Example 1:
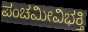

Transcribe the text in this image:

ಪಂಚಮೀವಿಭಕ್ತಿ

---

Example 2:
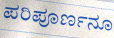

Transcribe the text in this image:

ಪರಿಪೂರ್ಣನೂ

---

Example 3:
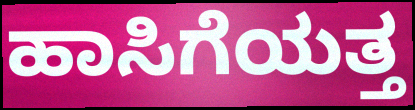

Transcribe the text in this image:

ಹಾಸಿಗೆಯತ್ತ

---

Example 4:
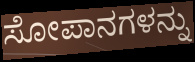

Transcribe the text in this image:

ಸೋಪಾನಗಳನ್ನು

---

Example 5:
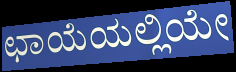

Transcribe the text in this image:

ಛಾಯೆಯಲ್ಲಿಯೇ